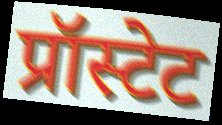
प्रॉस्टेट